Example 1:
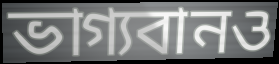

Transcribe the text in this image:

ভাগ্যবানও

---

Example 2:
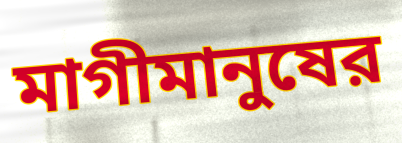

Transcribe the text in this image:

মাগীমানুষের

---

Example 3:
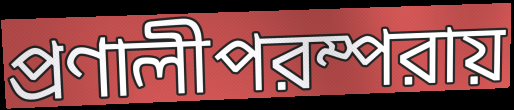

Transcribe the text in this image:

প্রণালীপরম্পরায়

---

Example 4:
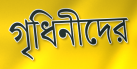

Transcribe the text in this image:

গৃধিনীদের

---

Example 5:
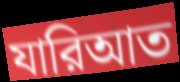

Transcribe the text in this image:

যারিআত